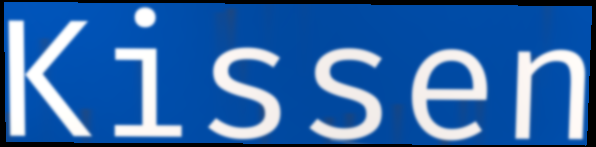
Kissen